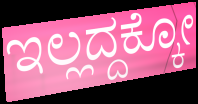
ಇಲ್ಲದ್ದಕ್ಕೋ